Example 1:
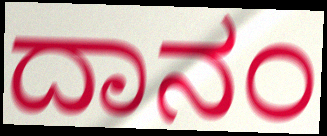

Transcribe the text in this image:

ದಾನಂ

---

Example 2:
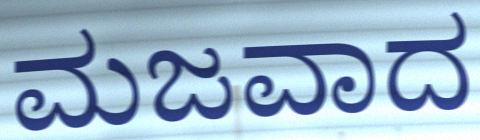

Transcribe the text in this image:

ಮಜವಾದ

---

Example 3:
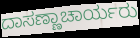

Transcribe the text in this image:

ದಾಸಣ್ಣಾಚಾರ್ಯರು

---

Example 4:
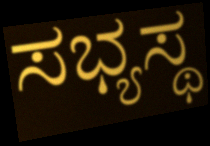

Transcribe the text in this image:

ಸಭ್ಯಸ್ಥ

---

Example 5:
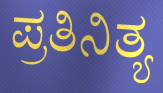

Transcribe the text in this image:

ಪ್ರತಿನಿತ್ಯ